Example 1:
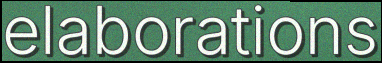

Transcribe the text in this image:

elaborations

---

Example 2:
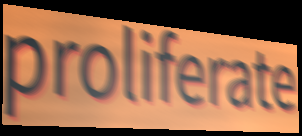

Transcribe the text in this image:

proliferate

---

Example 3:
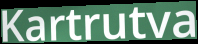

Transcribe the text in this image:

Kartrutva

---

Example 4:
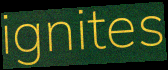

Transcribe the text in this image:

ignites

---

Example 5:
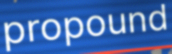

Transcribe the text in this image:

propound